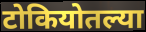
टोकियोतल्या